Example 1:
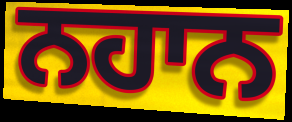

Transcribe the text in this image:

ਨਹਾਨ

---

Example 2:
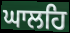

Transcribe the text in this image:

ਘਾਲਹਿ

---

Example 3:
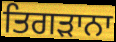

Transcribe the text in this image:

ਤਿਗੜਾਨਾ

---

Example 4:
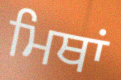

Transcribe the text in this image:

ਮਿਥਾਂ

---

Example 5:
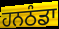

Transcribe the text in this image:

ਹਨਠੰਡਾ